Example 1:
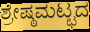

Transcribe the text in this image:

ಶ್ರೇಷ್ಠಮಟ್ಟದ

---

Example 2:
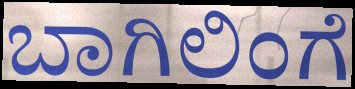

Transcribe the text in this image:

ಬಾಗಿಲಿಂಗೆ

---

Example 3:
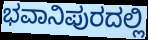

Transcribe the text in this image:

ಭವಾನಿಪುರದಲ್ಲಿ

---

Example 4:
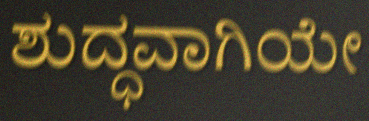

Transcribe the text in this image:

ಶುದ್ಧವಾಗಿಯೇ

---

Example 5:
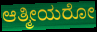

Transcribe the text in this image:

ಆತ್ಮೀಯರೋ